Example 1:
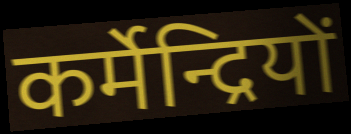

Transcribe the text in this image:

कर्मेन्द्रियों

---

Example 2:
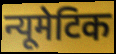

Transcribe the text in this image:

न्यूमेटिक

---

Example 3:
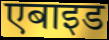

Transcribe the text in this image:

एबाइड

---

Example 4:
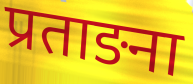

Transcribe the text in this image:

प्रताङना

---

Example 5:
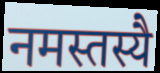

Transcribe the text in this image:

नमस्तस्यै